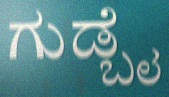
ಗುಡ್ಬೈ